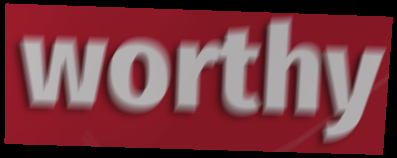
worthy